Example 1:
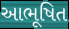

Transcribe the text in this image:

આભૂષિત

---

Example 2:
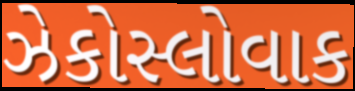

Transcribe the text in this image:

ઝેકોસ્લોવાક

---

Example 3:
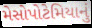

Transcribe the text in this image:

મેસોપોટેમિયાનું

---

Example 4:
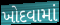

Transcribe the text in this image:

ખોદવામાં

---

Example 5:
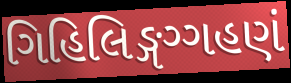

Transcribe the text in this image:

ગિહિલિઙ્ગગ્ગહણં